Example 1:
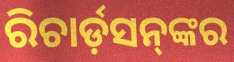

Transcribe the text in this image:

ରିଚାର୍ଡ଼ସନ୍‌ଙ୍କର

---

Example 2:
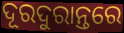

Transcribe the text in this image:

ଦୂରଦୁରାନ୍ତରେ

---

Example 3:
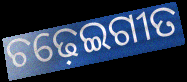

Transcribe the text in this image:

ଚଢ଼େଇଗୀତ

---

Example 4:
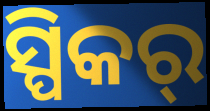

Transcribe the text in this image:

ସ୍ପିକର୍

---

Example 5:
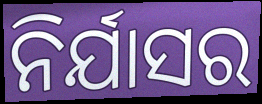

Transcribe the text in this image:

ନିର୍ଯାସର